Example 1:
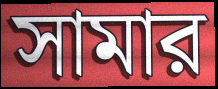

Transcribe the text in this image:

সামার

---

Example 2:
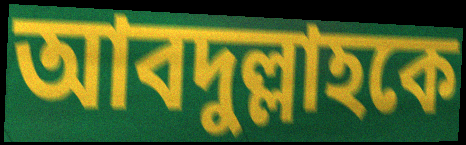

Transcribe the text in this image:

আবদুল্লাহকে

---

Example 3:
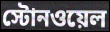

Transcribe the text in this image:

স্টোনওয়েল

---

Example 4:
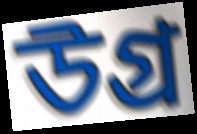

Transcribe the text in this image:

উগ্র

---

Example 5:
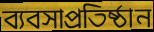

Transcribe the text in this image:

ব্যবসাপ্রতিষ্ঠান